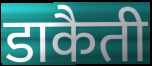
डाकैती